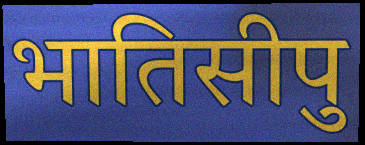
भातिसीपु